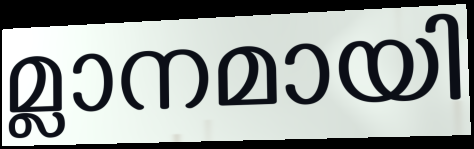
മ്ലാനമായി